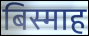
बिस्माह